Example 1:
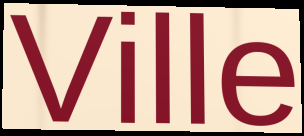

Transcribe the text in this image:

Ville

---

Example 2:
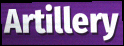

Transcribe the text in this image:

Artillery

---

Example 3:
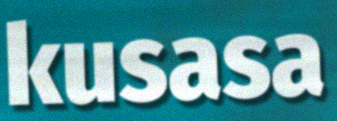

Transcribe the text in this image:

kusasa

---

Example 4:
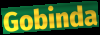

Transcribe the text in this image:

Gobinda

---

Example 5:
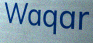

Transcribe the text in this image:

Waqar